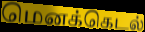
மெனக்கெடல்